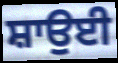
ਸ਼ਾਉਈ